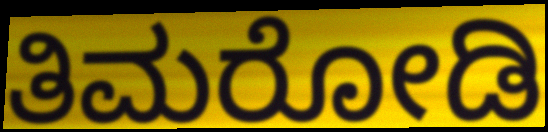
ತಿಮರೋಡಿ